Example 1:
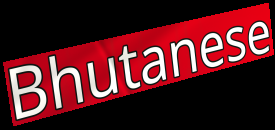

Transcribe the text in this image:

Bhutanese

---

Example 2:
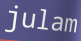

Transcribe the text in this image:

julam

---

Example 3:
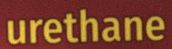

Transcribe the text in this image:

urethane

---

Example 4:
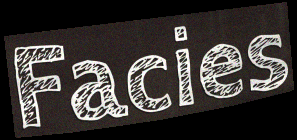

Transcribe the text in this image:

Facies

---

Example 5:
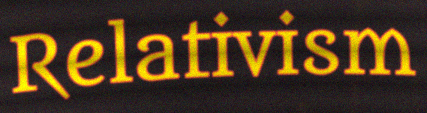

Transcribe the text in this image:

Relativism